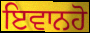
ਇਵਾਨਹੋ